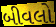
બીવલો